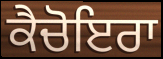
ਕੈਚੋਇਰਾ